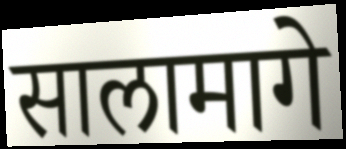
सालामागे